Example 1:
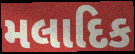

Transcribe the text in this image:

મલાદિક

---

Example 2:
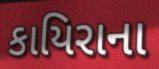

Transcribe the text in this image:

કાયિરાના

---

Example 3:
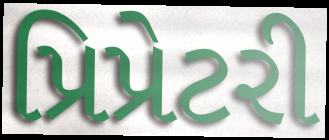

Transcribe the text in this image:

પ્રિપ્રેટરી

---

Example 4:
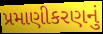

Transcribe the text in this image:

પ્રમાણીકરણનું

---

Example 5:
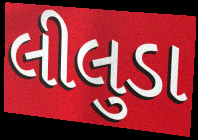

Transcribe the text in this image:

લીલુડા